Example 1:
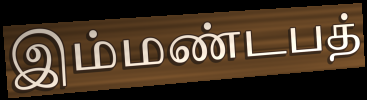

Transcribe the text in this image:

இம்மண்டபத்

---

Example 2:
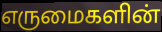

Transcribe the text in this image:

எருமைகளின்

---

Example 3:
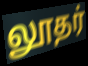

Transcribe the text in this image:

லூதர்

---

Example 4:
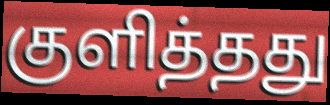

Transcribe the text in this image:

குளித்தது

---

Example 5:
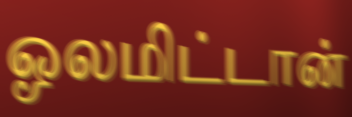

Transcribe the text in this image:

ஓலமிட்டான்